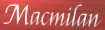
Macmilan